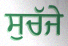
ਸੁਚੱਜੇ